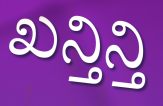
ಖನ್ತಿನ್ತಿ